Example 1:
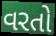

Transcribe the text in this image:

વરતો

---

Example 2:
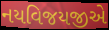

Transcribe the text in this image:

નયવિજયજીએ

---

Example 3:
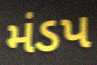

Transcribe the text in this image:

મંડપ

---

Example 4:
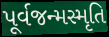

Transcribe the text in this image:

પૂર્વજન્મસ્મૃતિ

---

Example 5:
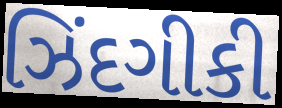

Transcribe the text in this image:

ઝિંદગીકી